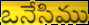
ఒనేసిము